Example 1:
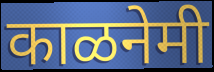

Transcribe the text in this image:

काळनेमी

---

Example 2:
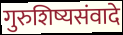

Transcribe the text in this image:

गुरुशिष्यसंवादे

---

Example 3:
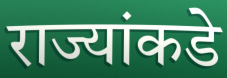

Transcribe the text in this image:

राज्यांकडे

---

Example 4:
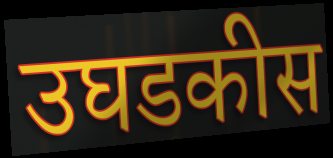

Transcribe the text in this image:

उघडकीस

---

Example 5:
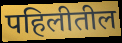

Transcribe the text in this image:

पहिलीतील